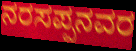
ನರಸಪ್ಪನವರ